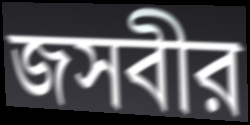
জসবীর